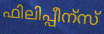
ഫിലിപ്പീന്സ്